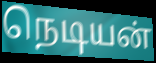
நெடியன்